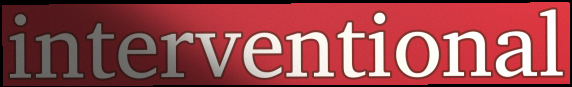
interventional